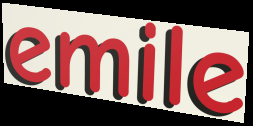
emile